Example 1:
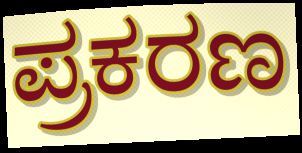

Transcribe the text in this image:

ಪ್ರಕರಣ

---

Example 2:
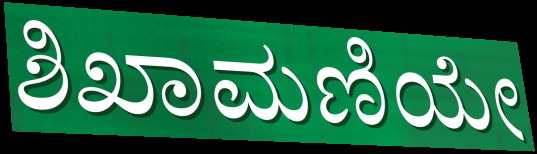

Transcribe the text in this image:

ಶಿಖಾಮಣಿಯೇ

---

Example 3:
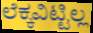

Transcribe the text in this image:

ಲೆಕ್ಕವಿಟ್ಟಿಲ್ಲ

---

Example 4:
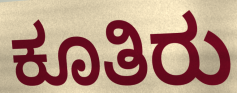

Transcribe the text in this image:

ಕೂತಿರು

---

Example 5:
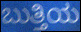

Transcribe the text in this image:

ಬುತ್ತಿಯ